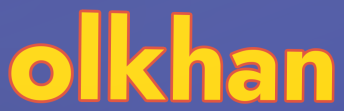
olkhan